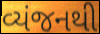
વ્યંજનથી